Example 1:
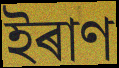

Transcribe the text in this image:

ইৰাণ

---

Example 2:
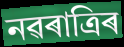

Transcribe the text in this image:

নৱৰাত্ৰিৰ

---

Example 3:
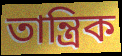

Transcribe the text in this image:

তান্ত্ৰিক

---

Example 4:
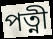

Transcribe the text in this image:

পত্নী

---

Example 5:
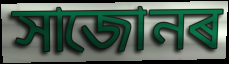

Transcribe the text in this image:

সাজোনৰ